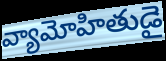
వ్యామోహితుడై